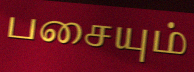
பசையும்